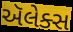
ઍલેક્સ